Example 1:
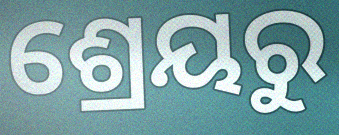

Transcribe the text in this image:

ଶ୍ରେୟରୁ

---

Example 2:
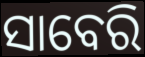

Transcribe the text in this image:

ସାବେରି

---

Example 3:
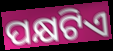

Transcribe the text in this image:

ପକ୍ଷଟିଏ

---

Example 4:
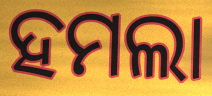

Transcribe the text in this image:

ହମଲା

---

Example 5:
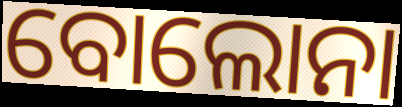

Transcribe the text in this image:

ବୋଲୋନା